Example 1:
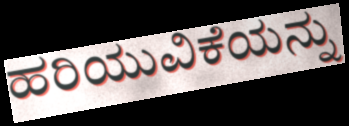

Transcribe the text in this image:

ಹರಿಯುವಿಕೆಯನ್ನು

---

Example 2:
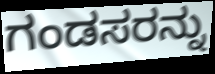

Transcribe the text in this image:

ಗಂಡಸರನ್ನು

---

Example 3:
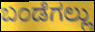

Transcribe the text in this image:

ಬಂಡೆಗಲ್ಲು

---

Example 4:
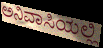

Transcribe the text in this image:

ಅನಿವಾಸಿಯಲ್ಲಿ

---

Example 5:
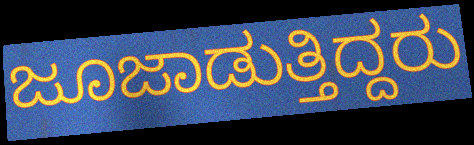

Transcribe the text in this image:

ಜೂಜಾಡುತ್ತಿದ್ದರು